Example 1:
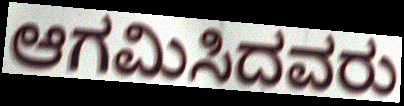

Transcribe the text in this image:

ಆಗಮಿಸಿದವರು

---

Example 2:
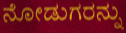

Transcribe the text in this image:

ನೋಡುಗರನ್ನು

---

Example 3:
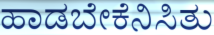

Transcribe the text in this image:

ಹಾಡಬೇಕೆನಿಸಿತು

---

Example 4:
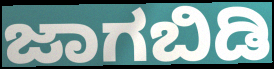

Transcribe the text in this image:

ಜಾಗಬಿಡಿ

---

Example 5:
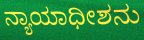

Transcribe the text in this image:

ನ್ಯಾಯಾಧೀಶನು